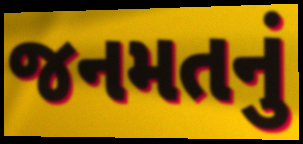
જનમતનું